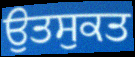
ਉਤਸੁਕਤ